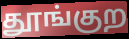
தூங்குற